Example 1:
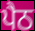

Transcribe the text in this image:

ਪੈਠ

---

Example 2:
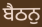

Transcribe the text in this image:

ਬੈਠਨੁ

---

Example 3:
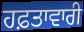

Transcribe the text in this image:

ਹਫ਼ਤਾਵਾਰੀ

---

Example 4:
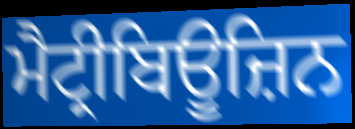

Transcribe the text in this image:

ਮੈਟ੍ਰੀਬਿਊਜ਼ਿਨ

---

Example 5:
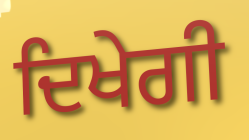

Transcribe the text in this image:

ਦਿਖੇਗੀ